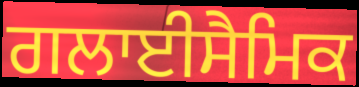
ਗਲਾਈਸੈਮਿਕ